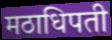
मठाधिपती